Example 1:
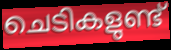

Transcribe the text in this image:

ചെടികളുണ്ട്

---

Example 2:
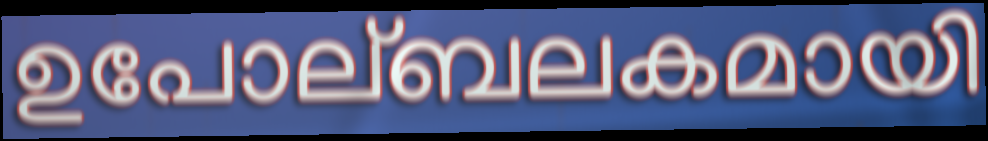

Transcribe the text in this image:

ഉപോല്ബലകമായി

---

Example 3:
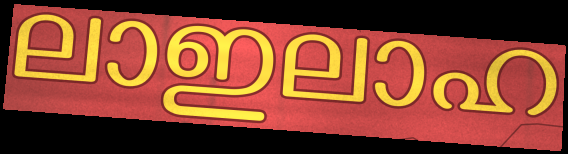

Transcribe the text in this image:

ലാഇലാഹ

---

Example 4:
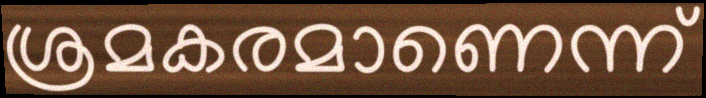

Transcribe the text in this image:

ശ്രമകരമാണെന്ന്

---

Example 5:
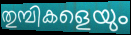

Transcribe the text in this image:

തുമ്പികളെയും